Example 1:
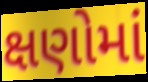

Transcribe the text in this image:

ક્ષણોમાં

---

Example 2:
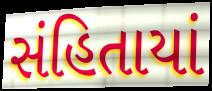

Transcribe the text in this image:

સંહિતાયાં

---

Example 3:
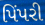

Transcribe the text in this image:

પિંપરી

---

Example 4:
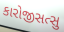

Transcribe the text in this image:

કારોજીસત્સુ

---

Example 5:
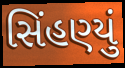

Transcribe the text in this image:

સિંહણ્યું